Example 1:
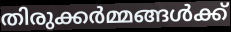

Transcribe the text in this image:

തിരുക്കർമ്മങ്ങൾക്ക്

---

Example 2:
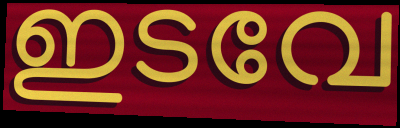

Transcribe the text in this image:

ഇടവേ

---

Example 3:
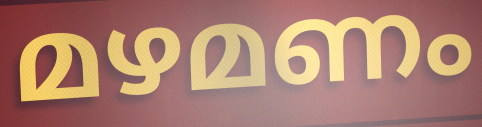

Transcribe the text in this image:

മഴമണം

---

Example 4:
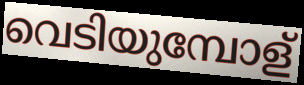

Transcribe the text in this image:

വെടിയുമ്പോള്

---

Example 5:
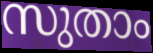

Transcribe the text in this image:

സുതാം